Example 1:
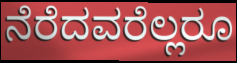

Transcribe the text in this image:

ನೆರೆದವರೆಲ್ಲರೂ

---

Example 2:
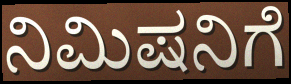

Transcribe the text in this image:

ನಿಮಿಷನಿಗೆ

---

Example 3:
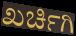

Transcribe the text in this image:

ಖರ್ಚಿಗಿ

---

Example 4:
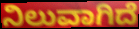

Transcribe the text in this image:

ನಿಲುವಾಗಿದೆ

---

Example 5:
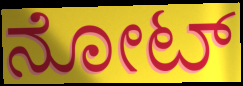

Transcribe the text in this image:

ನೋಟ್